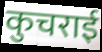
कुचराई